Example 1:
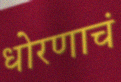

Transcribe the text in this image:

धोरणाचं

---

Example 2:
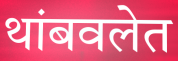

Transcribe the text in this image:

थांबवलेत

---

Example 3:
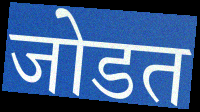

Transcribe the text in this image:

जोडत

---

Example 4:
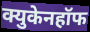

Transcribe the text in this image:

क्युकेनहॉफ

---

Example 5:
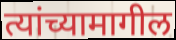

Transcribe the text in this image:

त्यांच्यामागील